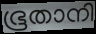
ഭൂതാനി